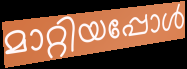
മാറ്റിയപ്പോൾ